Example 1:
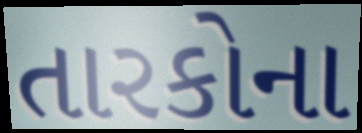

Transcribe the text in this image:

તારકોના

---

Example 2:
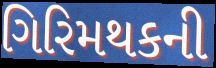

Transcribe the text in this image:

ગિરિમથકની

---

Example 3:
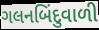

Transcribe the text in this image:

ગલનબિંદુવાળી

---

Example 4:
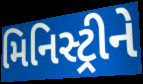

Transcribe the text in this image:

મિનિસ્ટ્રીને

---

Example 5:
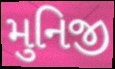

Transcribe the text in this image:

મુનિજી